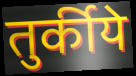
तुर्कीये